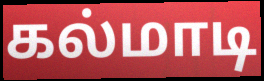
கல்மாடி